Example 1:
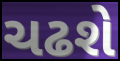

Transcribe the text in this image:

ચઢશે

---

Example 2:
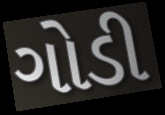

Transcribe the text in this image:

ગોડી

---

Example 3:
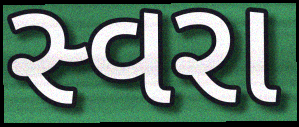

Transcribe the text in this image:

સ્વરા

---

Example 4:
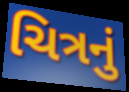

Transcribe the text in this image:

ચિત્રનું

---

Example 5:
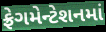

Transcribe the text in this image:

ફ્રેગમેન્ટેશનમાં